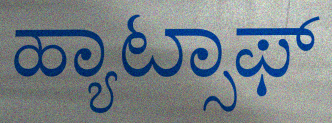
ಹ್ಯಾಟ್ಸಾಫ್